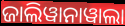
ଜାଲିୱାନାୱାଲା